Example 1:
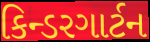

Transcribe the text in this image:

કિન્ડરગાર્ટન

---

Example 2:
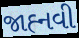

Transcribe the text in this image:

જાહ્‍નવી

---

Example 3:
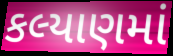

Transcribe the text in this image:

કલ્યાણમાં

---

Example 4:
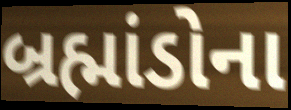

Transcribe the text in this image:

બ્રહ્માંડોના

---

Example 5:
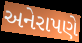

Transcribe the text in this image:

અનેરાપણે